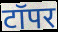
टॉपर